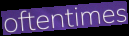
oftentimes